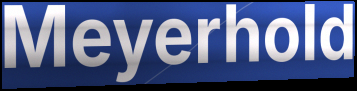
Meyerhold